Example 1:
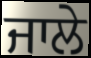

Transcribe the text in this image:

ਜਾਲੇ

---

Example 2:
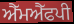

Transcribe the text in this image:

ਐੱਮਐੱਫਪੀ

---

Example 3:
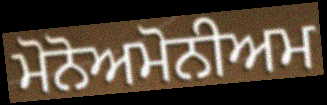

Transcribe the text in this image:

ਮੋਨੋਅਮੋਨੀਅਮ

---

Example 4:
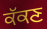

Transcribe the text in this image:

ਕੱਕਣ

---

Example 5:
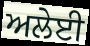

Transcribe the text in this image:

ਅਲੇਈ